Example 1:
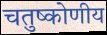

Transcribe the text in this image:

चतुष्कोणीय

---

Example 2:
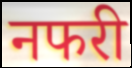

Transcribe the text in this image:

नफरी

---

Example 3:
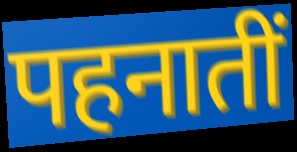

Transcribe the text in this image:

पहनातीं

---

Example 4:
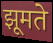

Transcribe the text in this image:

झूमते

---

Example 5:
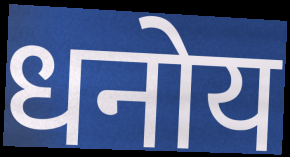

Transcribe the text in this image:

धनोय